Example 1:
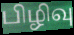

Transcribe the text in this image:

பிழிவு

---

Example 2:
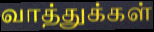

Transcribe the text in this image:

வாத்துக்கள்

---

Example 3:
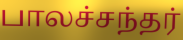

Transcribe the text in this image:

பாலச்சந்தர்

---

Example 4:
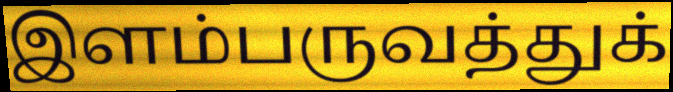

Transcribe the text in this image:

இளம்பருவத்துக்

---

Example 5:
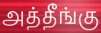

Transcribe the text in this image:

அத்தீங்கு